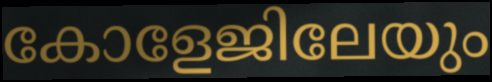
കോളേജിലേയും